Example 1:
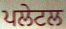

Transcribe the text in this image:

ਪਲੇਟਲ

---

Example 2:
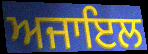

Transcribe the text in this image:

ਅਜਾਇਲ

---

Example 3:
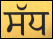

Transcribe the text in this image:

ਸੱਧ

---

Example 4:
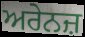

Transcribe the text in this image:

ਅਰੇਨਜ਼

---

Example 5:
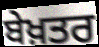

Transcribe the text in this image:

ਬੇਖ਼ਤਰ